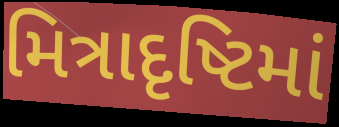
મિત્રાદૃષ્ટિમાં